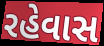
રહેવાસ